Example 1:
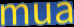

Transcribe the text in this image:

mua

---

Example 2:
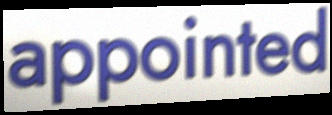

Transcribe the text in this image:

appointed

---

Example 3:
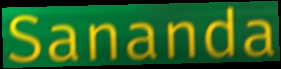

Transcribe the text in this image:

Sananda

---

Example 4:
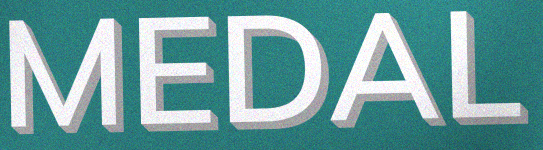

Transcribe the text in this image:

MEDAL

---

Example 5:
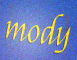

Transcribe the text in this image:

mody